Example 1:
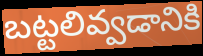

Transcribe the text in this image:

బట్టలివ్వడానికి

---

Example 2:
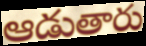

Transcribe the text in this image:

ఆడుతారు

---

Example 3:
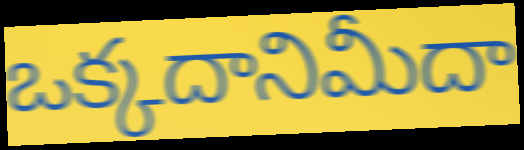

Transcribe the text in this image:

ఒక్కదానిమీదా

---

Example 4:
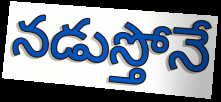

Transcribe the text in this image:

నడుస్తోనే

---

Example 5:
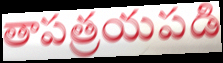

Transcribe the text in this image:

తాపత్రయపడి